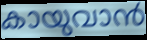
കായുവാൻ